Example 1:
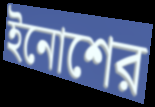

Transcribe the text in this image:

ইনোশের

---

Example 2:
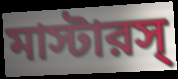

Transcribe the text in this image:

মাস্টারস্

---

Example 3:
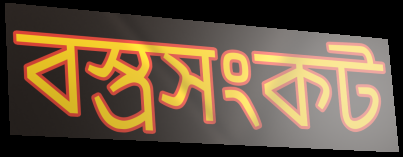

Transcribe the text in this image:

বস্ত্রসংকট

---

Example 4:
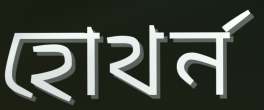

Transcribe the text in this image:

হোথর্ন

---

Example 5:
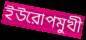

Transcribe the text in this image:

ইউরোপমুখী